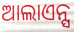
ଆଲାଏନ୍ସ